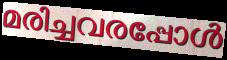
മരിച്ചവരപ്പോൾ